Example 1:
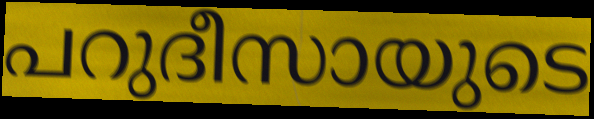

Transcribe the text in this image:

പറുദീസായുടെ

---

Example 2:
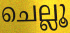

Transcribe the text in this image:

ചെല്ലൂ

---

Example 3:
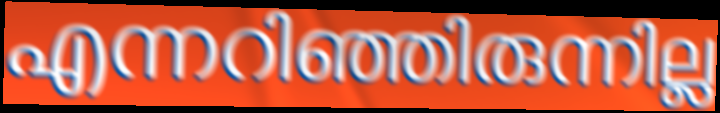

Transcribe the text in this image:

എന്നറിഞ്ഞിരുന്നില്ല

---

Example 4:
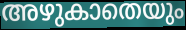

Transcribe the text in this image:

അഴുകാതെയും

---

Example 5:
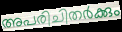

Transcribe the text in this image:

അപരിചിതർക്കും